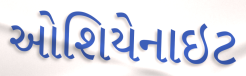
ઓશિયેનાઇટ